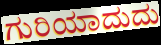
ಗುರಿಯಾದುದು